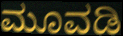
ಮೂವಡಿ